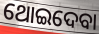
ଥୋଇଦେବା